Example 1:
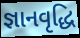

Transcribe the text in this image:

જ્ઞાનવૃદ્ધિ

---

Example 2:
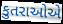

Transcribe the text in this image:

કુતરાઓએ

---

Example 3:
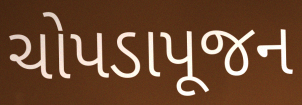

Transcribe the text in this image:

ચોપડાપૂજન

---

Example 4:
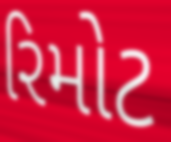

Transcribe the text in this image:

રિમોટ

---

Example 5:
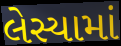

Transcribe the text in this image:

લેસ્યામાં